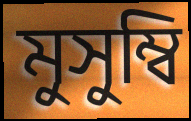
মুসুম্বি